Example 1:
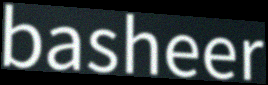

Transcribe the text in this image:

basheer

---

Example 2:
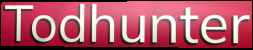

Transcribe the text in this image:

Todhunter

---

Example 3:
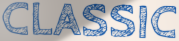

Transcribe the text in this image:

CLASSIC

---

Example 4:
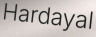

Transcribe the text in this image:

Hardayal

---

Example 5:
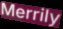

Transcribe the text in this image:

Merrily